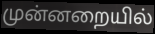
முன்னறையில்